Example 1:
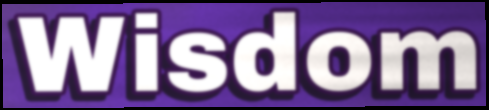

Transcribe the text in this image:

Wisdom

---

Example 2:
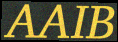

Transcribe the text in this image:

AAIB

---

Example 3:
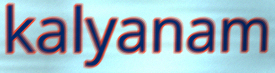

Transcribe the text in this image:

kalyanam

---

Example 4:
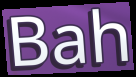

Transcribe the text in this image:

Bah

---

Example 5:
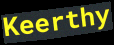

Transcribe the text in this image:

Keerthy